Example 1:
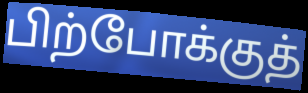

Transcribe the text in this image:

பிற்போக்குத்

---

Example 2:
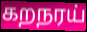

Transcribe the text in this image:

கறநரய்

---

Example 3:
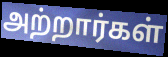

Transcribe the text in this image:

அற்றார்கள்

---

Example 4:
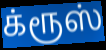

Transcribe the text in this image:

க்ரூஸ்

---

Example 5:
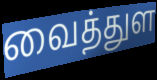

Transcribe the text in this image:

வைத்துள